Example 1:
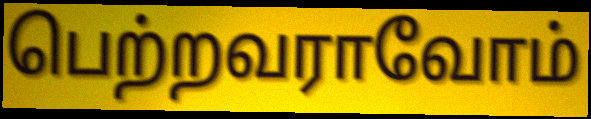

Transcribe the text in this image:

பெற்றவராவோம்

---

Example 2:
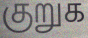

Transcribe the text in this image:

குறுக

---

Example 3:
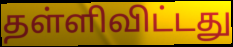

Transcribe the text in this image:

தள்ளிவிட்டது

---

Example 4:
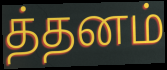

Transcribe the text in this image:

த்தனம்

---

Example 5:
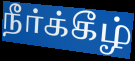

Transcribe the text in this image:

நீர்க்கீழ்